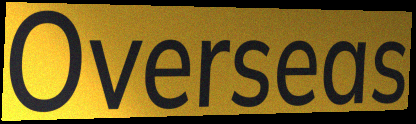
Overseas